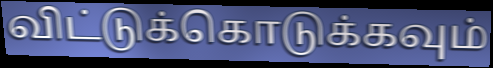
விட்டுக்கொடுக்கவும்